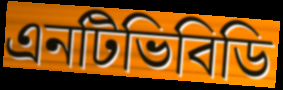
এনটিভিবিডি